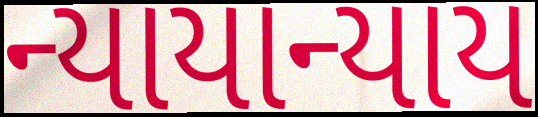
ન્યાયાન્યાય